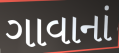
ગાવાનાં